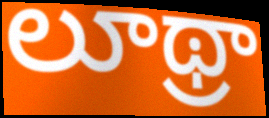
లూథ్రా